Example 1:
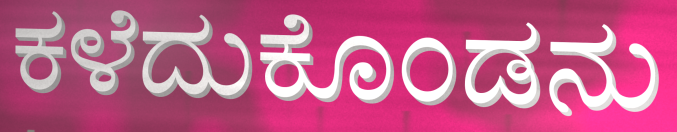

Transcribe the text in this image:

ಕಳೆದುಕೊಂಡನು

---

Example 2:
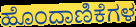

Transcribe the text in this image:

ಹೊಂದಾಣಿಕೆಗಳ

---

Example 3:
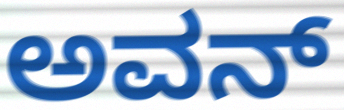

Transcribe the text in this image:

ಅವನ್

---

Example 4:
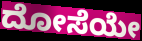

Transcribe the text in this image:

ದೋಸೆಯೇ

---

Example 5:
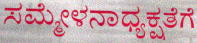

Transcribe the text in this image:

ಸಮ್ಮೇಳನಾಧ್ಯಕ್ಷತೆಗೆ